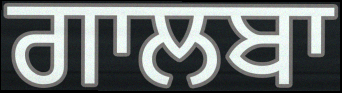
ਗਾਲਬਾ